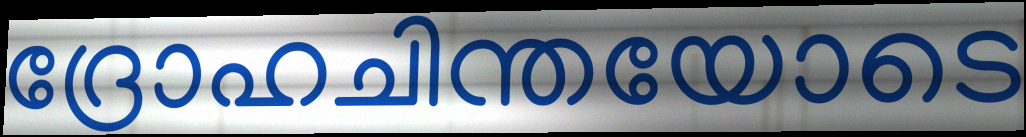
ദ്രോഹചിന്തയോടെ